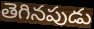
తెగినపుడు